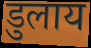
डुलाय